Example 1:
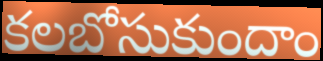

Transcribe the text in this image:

కలబోసుకుందాం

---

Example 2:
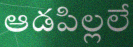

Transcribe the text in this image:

ఆడపిల్లలే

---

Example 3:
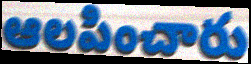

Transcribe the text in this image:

ఆలపించారు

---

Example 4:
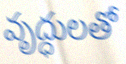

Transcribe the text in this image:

వృద్ధులతో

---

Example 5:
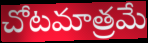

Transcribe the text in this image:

చోటమాత్రమే